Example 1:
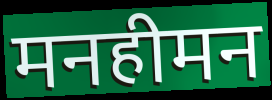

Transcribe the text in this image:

मनहीमन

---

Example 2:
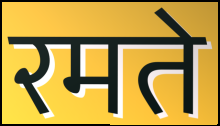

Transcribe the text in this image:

रमते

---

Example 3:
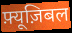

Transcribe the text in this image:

फ़्यूज़िबल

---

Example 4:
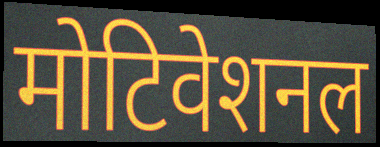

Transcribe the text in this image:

मोटिवेशनल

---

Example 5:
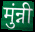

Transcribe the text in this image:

मुंन्नी